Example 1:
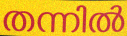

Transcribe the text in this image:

തന്നിൽ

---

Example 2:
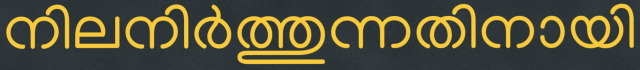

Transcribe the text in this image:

നിലനിർത്തുന്നതിനായി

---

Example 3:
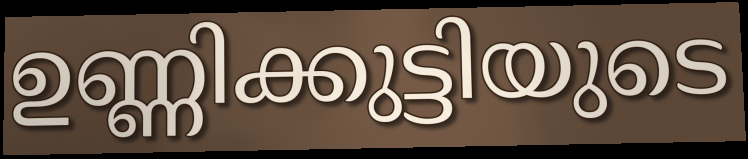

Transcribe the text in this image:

ഉണ്ണിക്കുട്ടിയുടെ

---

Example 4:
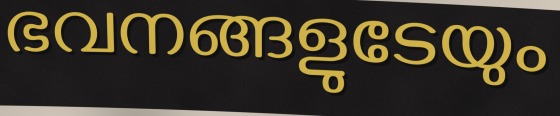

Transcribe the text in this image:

ഭവനങ്ങളുടേയും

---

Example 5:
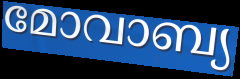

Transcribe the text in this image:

മോവാബ്യ